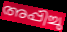
അൎപ്പിച്ചു